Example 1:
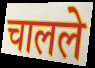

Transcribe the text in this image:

चालले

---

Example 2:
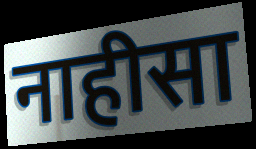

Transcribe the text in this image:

नाहीसा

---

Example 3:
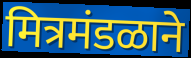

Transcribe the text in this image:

मित्रमंडळाने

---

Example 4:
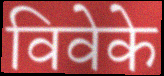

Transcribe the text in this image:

विवेके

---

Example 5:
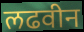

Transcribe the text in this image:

लढवीन